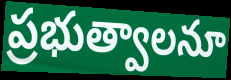
ప్రభుత్వాలనూ